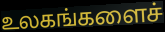
உலகங்களைச்